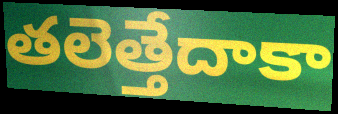
తలెత్తేదాకా